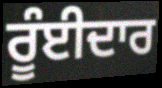
ਰੂੰਈਦਾਰ